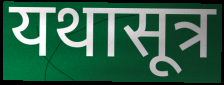
यथासूत्र